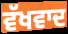
ਵੱਖਵਾਦ